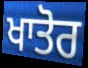
ਖਾਤੋਰ